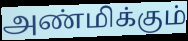
அண்மிக்கும்